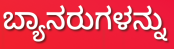
ಬ್ಯಾನರುಗಳನ್ನು